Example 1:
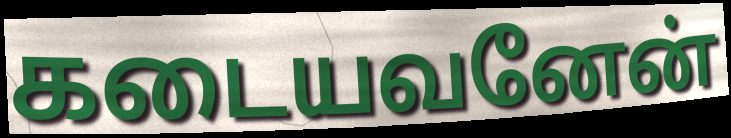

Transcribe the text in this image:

கடையவனேன்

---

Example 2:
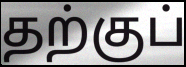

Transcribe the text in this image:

தற்குப்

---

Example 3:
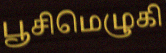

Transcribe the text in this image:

பூசிமெழுகி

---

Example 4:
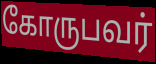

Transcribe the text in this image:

கோருபவர்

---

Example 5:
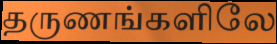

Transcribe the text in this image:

தருணங்களிலே